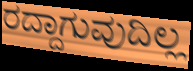
ರದ್ದಾಗುವುದಿಲ್ಲ